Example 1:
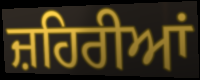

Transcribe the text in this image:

ਜ਼ਹਿਰੀਆਂ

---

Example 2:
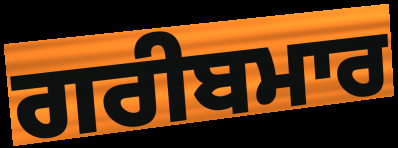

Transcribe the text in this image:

ਗਰੀਬਮਾਰ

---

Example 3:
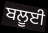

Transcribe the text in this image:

ਬਲੂਈ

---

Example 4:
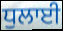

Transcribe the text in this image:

ਧੁਲਾਈ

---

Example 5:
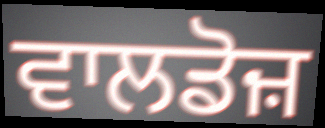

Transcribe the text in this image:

ਵਾਲਡੋਜ਼